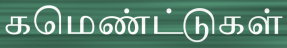
கமெண்ட்டுகள்